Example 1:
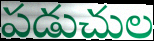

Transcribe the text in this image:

పడుచుల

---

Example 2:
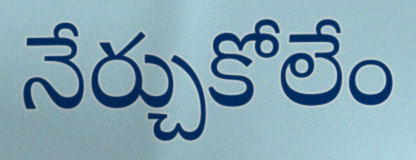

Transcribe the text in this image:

నేర్చుకోలేం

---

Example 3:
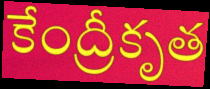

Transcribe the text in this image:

కేంద్రీకృత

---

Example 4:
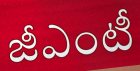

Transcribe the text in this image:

జీఎంటీ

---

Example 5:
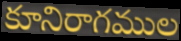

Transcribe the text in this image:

కూనిరాగముల